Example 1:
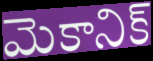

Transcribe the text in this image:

మెకానిక్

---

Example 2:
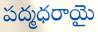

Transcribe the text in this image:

పద్మధరాయై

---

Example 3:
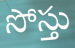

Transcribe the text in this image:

సోస్తు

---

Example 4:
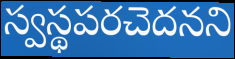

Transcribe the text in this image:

స్వస్థపరచెదనని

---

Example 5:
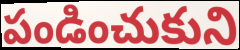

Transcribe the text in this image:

పండించుకుని